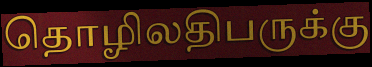
தொழிலதிபருக்கு